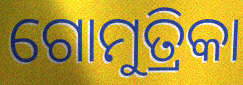
ଗୋମୁତ୍ରିକା